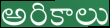
అరికాలు